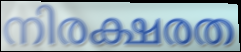
നിരക്ഷരത